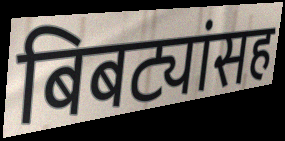
बिबट्यांसह